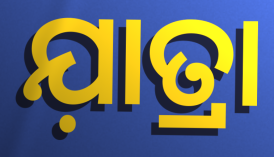
ଯ଼ାତ୍ରା